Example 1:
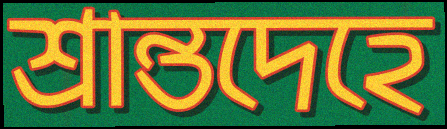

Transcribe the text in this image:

শ্রান্তদেহে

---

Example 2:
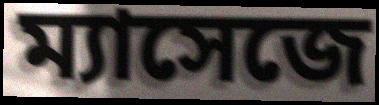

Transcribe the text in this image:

ম্যাসেজে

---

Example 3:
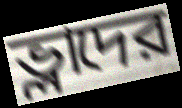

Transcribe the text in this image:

ভ্লাদের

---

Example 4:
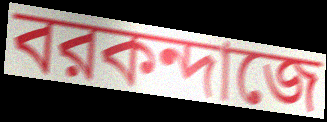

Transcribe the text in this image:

বরকন্দাজে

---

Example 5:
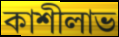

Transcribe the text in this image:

কাশীলাভ